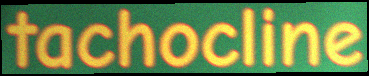
tachocline